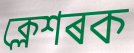
ক্লেশৰক